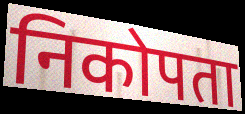
निकोपता